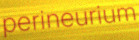
perineurium